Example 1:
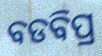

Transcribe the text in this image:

ବଡବିପ୍ର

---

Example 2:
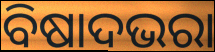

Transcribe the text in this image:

ବିଷାଦଭରା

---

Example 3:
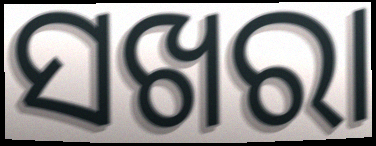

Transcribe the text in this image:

ସଖରା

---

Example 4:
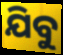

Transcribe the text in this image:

ଯିବୁ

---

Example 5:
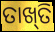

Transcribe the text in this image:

ତାଖ୍‍ତି